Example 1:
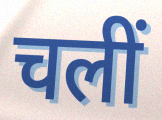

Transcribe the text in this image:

चलीं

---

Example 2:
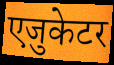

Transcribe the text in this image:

एजुकेटर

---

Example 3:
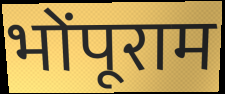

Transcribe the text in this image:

भोंपूराम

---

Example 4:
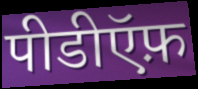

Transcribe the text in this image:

पीडीऍफ़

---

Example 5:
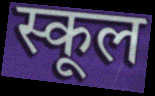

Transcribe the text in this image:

स्कूल